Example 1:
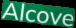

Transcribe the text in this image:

Alcove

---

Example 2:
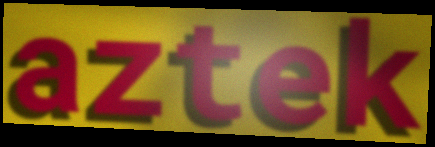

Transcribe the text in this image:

aztek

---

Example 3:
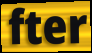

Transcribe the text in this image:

fter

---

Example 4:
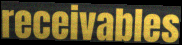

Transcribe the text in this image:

receivables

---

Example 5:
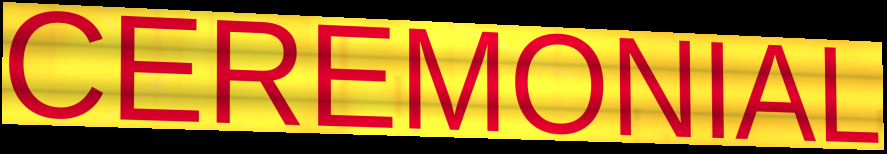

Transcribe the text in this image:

CEREMONIAL